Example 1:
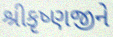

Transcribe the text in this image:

શ્રીકૃષ્ણજીને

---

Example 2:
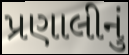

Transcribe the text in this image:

પ્રણાલીનું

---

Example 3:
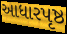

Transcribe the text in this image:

આધારપૃષ્ઠ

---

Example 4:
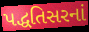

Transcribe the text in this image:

પદ્ધતિસરનાં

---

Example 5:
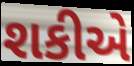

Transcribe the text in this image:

શકીએ